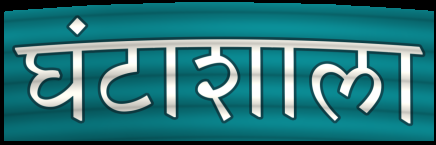
घंटाशाला